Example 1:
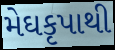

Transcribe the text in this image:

મેઘકૃપાથી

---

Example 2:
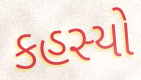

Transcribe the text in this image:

કહસ્યો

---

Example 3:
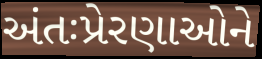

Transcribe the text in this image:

અંતઃપ્રેરણાઓને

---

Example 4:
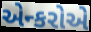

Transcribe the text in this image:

એન્કરોએ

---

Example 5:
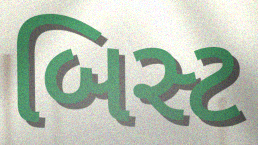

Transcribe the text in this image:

બિસ્ટ